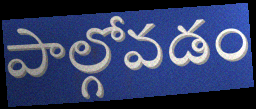
పాల్గోవడం